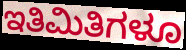
ಇತಿಮಿತಿಗಳೂ